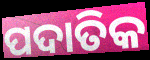
ପଦାତିକ